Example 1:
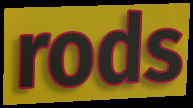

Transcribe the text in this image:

rods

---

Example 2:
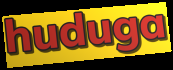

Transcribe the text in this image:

huduga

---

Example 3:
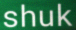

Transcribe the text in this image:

shuk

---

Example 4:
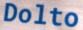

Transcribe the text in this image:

Dolto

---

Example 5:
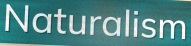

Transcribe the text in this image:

Naturalism